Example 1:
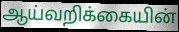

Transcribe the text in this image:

ஆய்வறிக்கையின்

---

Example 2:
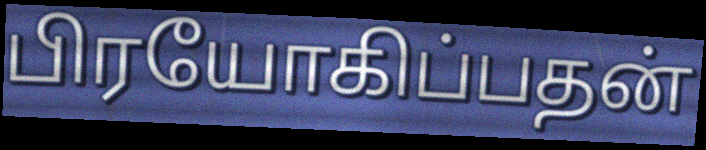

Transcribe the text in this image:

பிரயோகிப்பதன்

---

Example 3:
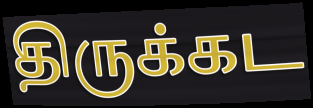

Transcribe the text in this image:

திருக்கட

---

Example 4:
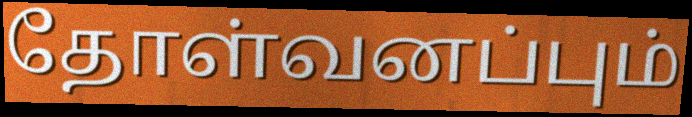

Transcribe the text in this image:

தோள்வனப்பும்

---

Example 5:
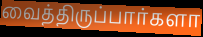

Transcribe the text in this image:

வைத்திருப்பார்களா